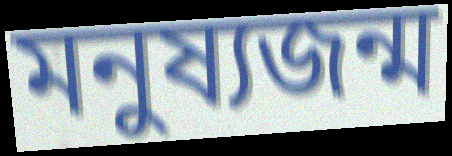
মনুষ্যজন্ম